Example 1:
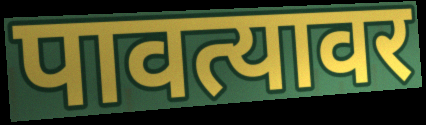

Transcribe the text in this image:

पावत्यावर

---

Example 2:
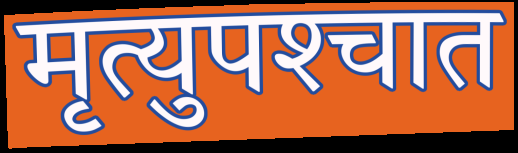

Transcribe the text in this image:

मृत्युपश्‍चात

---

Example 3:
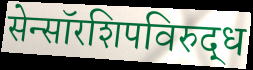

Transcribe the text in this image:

सेन्सॉरशिपविरुद्ध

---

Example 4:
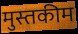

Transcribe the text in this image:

मुस्तकीम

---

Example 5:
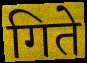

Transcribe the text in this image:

गिते